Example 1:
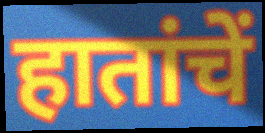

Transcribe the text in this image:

हातांचें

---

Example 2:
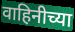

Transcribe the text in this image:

वाहिनीच्या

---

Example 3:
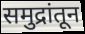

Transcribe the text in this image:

समुद्रांतून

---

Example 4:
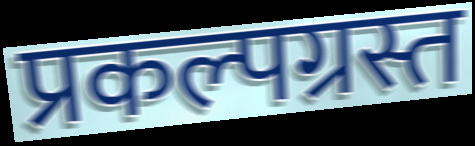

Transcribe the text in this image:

प्रकल्पग्रस्त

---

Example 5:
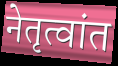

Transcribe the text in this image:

नेतृत्वांत